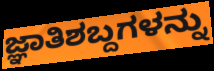
ಜ್ಞಾತಿಶಬ್ದಗಳನ್ನು